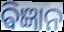
ଵିଜ୍ଞାନ